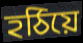
হঠিয়ে